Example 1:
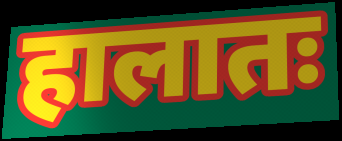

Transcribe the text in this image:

हालातः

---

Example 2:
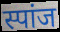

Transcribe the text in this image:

स्पांज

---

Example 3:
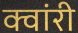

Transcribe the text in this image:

क्वांरी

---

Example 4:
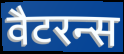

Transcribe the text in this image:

वैटरन्स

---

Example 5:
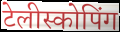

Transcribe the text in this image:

टेलीस्कोपिंग